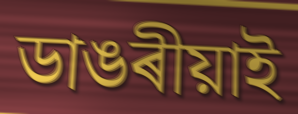
ডাঙৰীয়াই